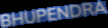
BHUPENDRA